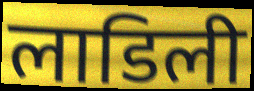
लाडिली